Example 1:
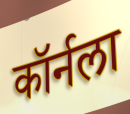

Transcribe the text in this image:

कॉर्नला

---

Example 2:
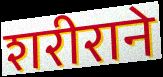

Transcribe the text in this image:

शरीराने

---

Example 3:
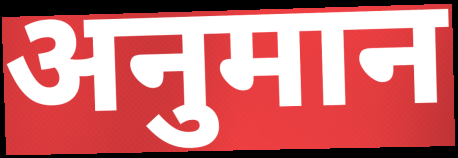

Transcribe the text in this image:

अनुमान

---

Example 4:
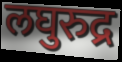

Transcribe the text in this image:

लघुरुद्र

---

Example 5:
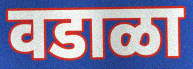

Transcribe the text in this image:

वडाळा